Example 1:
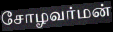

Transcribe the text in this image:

சோழவர்மன்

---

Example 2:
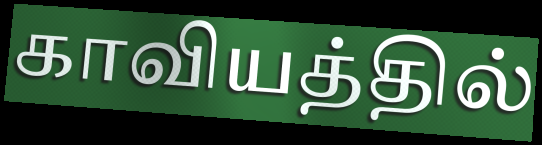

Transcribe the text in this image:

காவியத்தில்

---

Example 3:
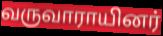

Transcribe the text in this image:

வருவாராயினர்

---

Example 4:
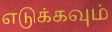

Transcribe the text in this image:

எடுக்கவும்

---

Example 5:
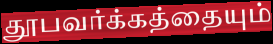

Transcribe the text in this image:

தூபவர்க்கத்தையும்